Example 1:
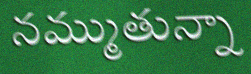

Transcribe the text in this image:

నమ్ముతున్నా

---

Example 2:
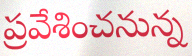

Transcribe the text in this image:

ప్రవేశించనున్న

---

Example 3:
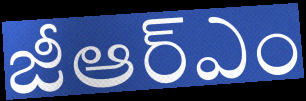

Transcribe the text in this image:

జీఆర్ఎం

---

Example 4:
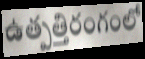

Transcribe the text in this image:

ఉత్పత్తిరంగంలో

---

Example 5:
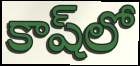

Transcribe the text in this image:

కాష్‌లో